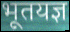
भूतयज्ञ